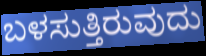
ಬಳಸುತ್ತಿರುವುದು